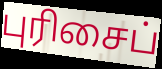
புரிசைப்